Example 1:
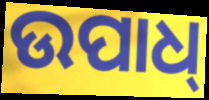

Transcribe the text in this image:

ଉପାଧ୍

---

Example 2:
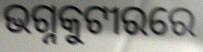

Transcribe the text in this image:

ଭଗ୍ନକୁଟୀରରେ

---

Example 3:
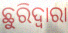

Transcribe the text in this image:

ଛୁରିଦ୍ୱାରା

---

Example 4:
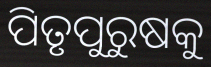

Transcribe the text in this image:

ପିତୃପୁରୁଷକୁ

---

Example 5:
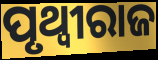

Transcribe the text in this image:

ପୃଥ୍ବୀରାଜ